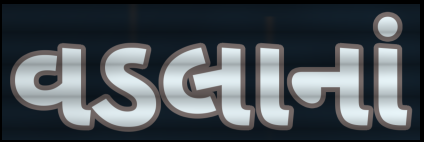
વડલાનાં